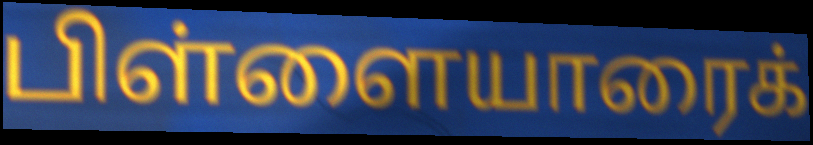
பிள்ளையாரைக்